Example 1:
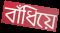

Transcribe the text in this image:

বাঁধিয়ে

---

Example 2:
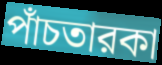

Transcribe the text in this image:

পাঁচতারকা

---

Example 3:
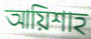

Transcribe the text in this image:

আয়িশাহ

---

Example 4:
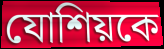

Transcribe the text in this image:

যোশিয়কে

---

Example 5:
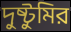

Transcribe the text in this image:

দুষ্টুমির